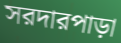
সরদারপাড়া